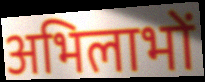
अभिलाभों